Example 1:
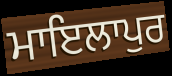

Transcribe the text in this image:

ਮਾਇਲਾਪੁਰ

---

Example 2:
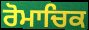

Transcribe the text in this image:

ਰੋਮਾਚਿਕ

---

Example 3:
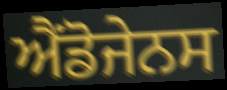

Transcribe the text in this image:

ਐਂਡੋਜੇਨਸ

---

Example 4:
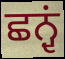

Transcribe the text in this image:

ਛਨ੍ਦਂ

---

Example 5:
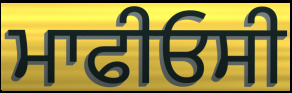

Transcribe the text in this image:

ਮਾਫੀਓਸੀ